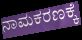
ನಾಮಕರಣಕ್ಕೆ